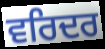
ਵਰਿਦਰ